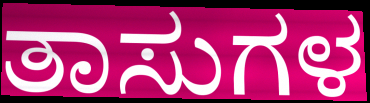
ತಾಸುಗಳ